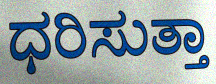
ಧರಿಸುತ್ತಾ